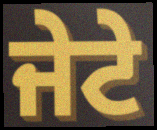
ਜੇਟੇ